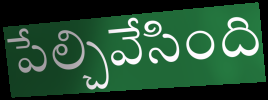
పేల్చివేసింది